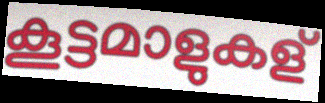
കൂട്ടമാളുകള്